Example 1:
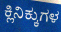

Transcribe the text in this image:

ಕ್ಲಿನಿಕ್ಕುಗಳ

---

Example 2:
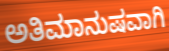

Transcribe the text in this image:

ಅತಿಮಾನುಷವಾಗಿ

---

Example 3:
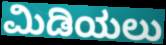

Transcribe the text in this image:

ಮಿಡಿಯಲು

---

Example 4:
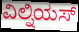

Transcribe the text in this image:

ವಿಲ್ನಿಯಸ್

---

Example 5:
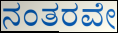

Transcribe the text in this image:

ನಂತರವೇ